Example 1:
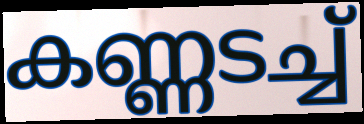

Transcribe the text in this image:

കണ്ണടച്ച്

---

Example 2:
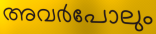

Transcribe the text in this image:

അവർപോലും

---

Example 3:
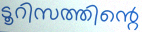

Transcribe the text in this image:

ടൂറിസത്തിന്റെ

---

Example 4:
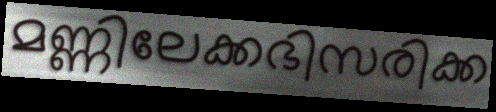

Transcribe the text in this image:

മണ്ണിലേക്കഭിസരിക്ക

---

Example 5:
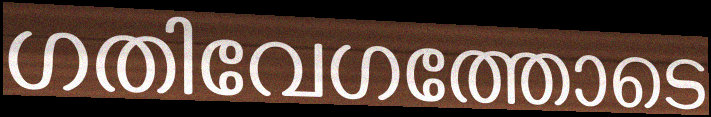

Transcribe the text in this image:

ഗതിവേഗത്തോടെ